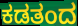
ಕಡತಂದ